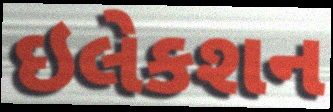
ઇલેકશન